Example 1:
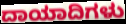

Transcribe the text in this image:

ದಾಯಾದಿಗಳು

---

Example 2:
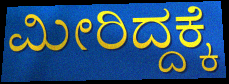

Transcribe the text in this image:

ಮೀರಿದ್ದಕ್ಕೆ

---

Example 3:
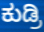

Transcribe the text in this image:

ಕುಡ್ರಿ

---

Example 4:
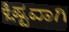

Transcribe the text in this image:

ಕ್ಲಿಷ್ಟವಾಗಿ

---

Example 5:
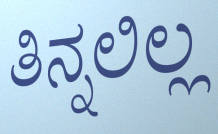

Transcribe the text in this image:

ತಿನ್ನಲಿಲ್ಲ